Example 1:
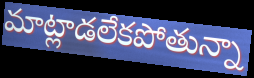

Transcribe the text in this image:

మాట్లాడలేకపోతున్నా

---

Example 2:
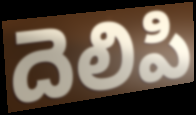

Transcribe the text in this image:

దెలిపి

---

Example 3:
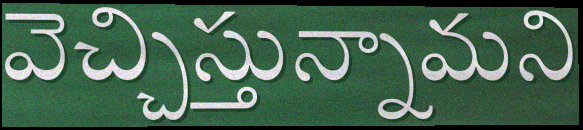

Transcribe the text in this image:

వెచ్చిస్తున్నామని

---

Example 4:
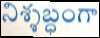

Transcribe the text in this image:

నిశ్శబ్ధంగా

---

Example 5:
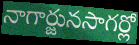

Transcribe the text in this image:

నాగార్జునసాగర్లో